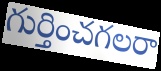
గుర్తించగలరా